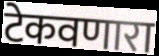
टेकवणारा